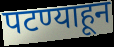
पटण्याहून